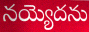
నయ్యెదను